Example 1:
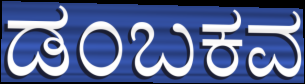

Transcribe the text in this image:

ಡಂಬಕವ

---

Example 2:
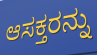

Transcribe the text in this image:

ಆಸಕ್ತರನ್ನು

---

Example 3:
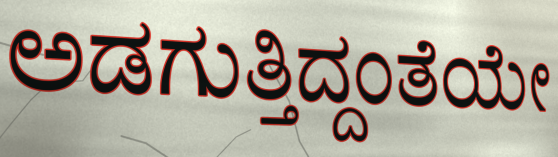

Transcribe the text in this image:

ಅಡಗುತ್ತಿದ್ದಂತೆಯೇ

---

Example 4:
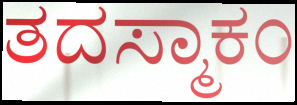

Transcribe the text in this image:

ತದಸ್ಮಾಕಂ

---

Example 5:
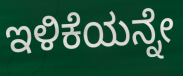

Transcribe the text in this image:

ಇಳಿಕೆಯನ್ನೇ